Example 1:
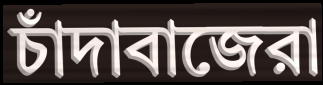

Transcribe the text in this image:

চাঁদাবাজেরা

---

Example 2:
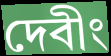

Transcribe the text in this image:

দেবীং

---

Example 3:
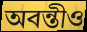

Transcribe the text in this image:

অবন্তীও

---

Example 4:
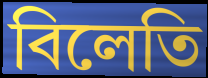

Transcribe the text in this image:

বিলেতি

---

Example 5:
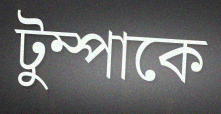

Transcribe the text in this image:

টুম্পাকে